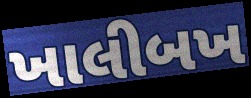
ખાલીબખ